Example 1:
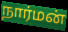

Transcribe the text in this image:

நார்மன்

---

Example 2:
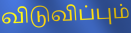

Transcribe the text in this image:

விடுவிப்பும்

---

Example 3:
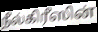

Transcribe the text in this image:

நீல்கிரீஸின்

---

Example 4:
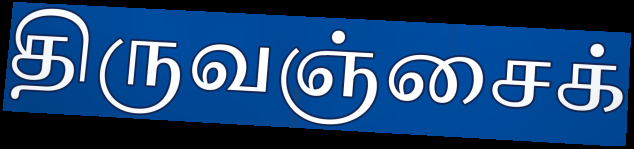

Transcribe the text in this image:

திருவஞ்சைக்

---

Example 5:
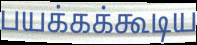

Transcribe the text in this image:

பயக்கக்கூடிய